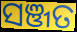
ସଞ୍ଜତ